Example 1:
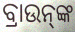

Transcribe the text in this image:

ବ୍ରାଉନ୍‌ଙ୍କ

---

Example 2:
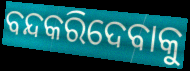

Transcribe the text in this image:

ବନ୍ଦକରିଦେବାକୁ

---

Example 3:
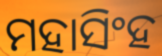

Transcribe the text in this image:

ମହାସିଂହ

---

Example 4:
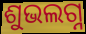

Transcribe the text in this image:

ଶୁଭଲଗ୍ନ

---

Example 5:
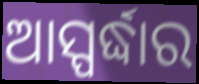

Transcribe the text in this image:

ଆସ୍ପର୍ଦ୍ଧାର